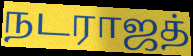
நடராஜத்